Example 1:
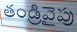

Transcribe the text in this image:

తండ్రివైపు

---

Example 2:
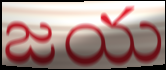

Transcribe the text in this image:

జయ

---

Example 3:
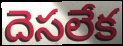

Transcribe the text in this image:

దెసలేక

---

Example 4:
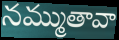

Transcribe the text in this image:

నమ్ముతావా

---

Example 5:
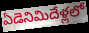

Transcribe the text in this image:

ఏడెనిమిదేళ్లలో